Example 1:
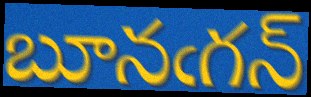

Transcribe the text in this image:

బూనఁగన్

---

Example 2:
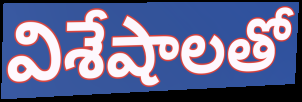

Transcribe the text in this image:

విశేషాలతో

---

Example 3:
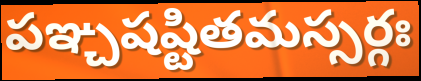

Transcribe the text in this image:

పఞ్చషష్టితమస్సర్గః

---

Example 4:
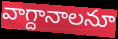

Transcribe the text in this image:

వాగ్దానాలనూ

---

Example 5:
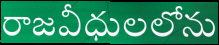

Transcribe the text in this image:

రాజవీధులలోను